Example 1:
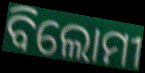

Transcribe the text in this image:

ବିଲୋମୀ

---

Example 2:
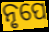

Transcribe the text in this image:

ନୃପେ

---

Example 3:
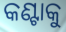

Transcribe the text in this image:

କଣ୍ଟାକୁ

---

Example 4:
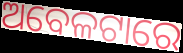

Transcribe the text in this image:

ଅବେଳଟାରେ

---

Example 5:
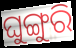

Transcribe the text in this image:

ଘୁଙ୍ଗୁରି